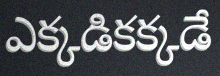
ఎక్కడికక్కడే